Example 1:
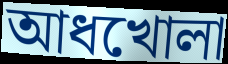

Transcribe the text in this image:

আধখোলা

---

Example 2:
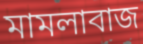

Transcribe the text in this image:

মামলাবাজ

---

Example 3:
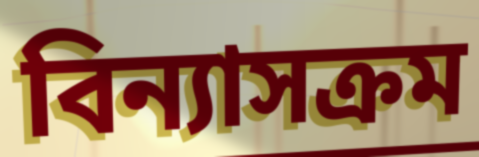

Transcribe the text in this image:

বিন্যাসক্রম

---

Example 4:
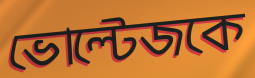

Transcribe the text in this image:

ভোল্টেজকে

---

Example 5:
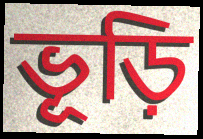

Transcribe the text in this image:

ভূড়ি